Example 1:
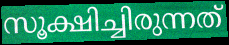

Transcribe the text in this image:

സൂക്ഷിച്ചിരുന്നത്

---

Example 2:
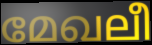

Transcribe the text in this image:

മേഖലീ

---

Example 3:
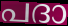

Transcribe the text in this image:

പദാ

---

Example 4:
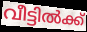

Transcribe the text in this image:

വീട്ടിൽക്ക്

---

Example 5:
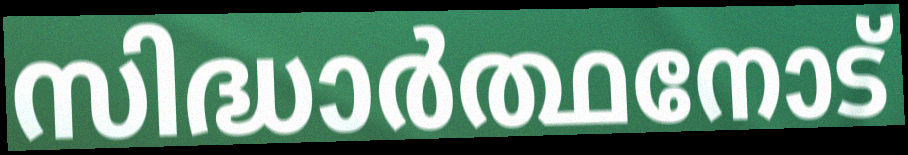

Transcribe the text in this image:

സിദ്ധാർത്ഥനോട്